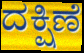
ದಕ್ಷಿಣೆ